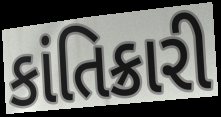
કાંતિક્રારી